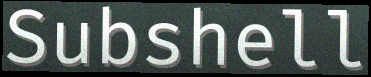
Subshell